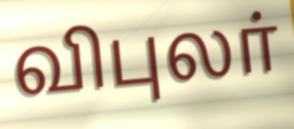
விபுலர்